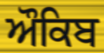
ਔਕਿਬ